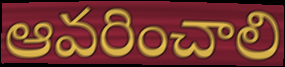
ఆవరించాలి